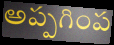
అప్పగింప